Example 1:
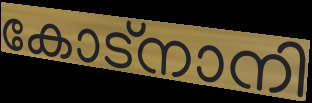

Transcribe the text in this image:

കോട്നാനി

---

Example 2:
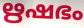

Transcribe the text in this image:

ഋഷഭം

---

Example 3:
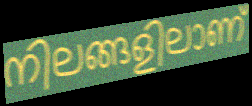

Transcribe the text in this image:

നിലങ്ങളിലാണ്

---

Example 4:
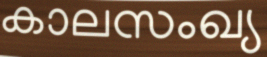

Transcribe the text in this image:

കാലസംഖ്യ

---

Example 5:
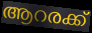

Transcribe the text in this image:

ആറരക്ക്